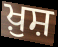
ਖ਼ੁਸ਼